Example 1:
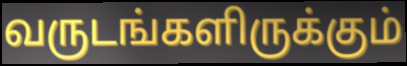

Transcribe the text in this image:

வருடங்களிருக்கும்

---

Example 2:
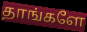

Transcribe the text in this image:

தாங்களே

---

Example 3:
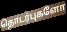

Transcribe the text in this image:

தொடர்புகளோ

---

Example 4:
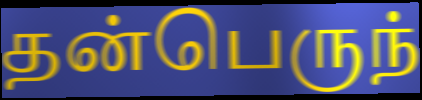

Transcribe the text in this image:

தன்பெருந்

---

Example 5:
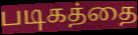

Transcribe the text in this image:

படிகத்தை